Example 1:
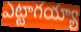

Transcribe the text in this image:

ఎట్టాగయ్యా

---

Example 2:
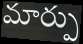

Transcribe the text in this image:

మార్పు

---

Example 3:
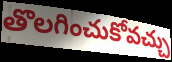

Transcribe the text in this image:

తొలగించుకోవచ్చు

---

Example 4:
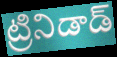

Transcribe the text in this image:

ట్రినిడాడ్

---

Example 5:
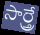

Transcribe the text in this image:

సార్త్రే